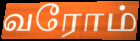
வரோம்